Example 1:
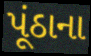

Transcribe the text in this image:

પૂંઠાના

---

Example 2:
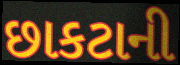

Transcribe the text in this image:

છાકટાની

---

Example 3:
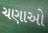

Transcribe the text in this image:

ચણાઓ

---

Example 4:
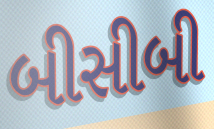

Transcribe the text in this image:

બીસીબી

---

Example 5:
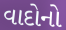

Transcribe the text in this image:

વાદોનો